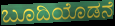
ಬೂದಿಯೊಡನೆ